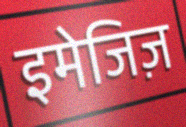
इमेजिज़